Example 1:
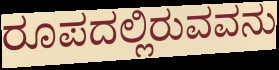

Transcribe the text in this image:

ರೂಪದಲ್ಲಿರುವವನು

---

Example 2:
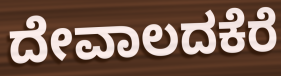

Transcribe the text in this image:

ದೇವಾಲದಕೆರೆ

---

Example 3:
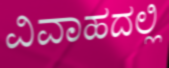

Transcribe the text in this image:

ವಿವಾಹದಲ್ಲಿ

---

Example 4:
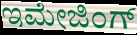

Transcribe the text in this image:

ಇಮೇಜಿಂಗ್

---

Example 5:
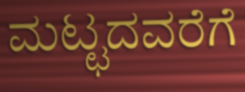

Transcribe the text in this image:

ಮಟ್ಟದವರೆಗೆ